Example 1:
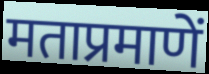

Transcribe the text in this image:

मताप्रमाणें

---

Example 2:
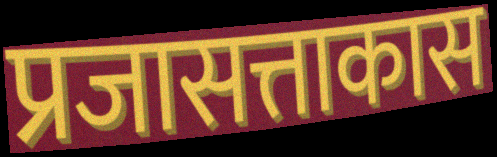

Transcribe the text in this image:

प्रजासत्ताकास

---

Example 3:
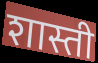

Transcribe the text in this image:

शास्ती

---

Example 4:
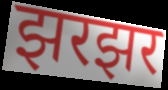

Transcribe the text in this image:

झरझर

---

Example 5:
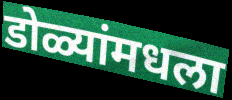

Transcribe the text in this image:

डोळ्यांमधला